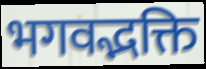
भगवद्भक्ति